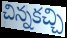
చిన్నకచ్చి